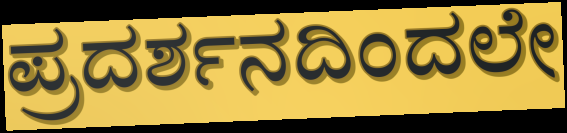
ಪ್ರದರ್ಶನದಿಂದಲೇ